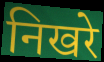
निखरे